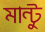
মান্টু